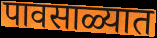
पावसाळ्यात